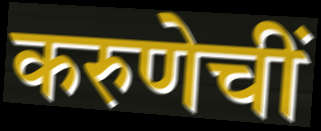
करुणेचीं